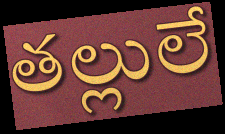
తల్లులే